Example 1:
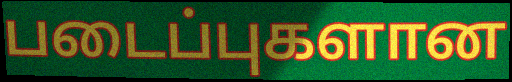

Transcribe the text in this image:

படைப்புகளான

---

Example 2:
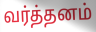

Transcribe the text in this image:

வர்த்தனம்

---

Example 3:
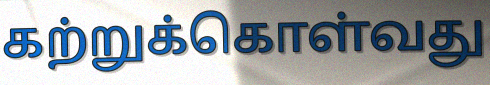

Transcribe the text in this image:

கற்றுக்கொள்வது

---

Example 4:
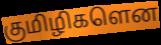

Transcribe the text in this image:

குமிழிகளென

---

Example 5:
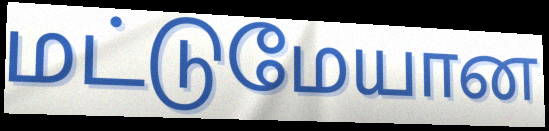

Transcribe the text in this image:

மட்டுமேயான